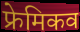
फ्रेमिकव